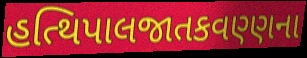
હત્થિપાલજાતકવણ્ણના